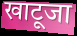
खाटूजा